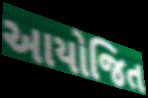
આયોજિત